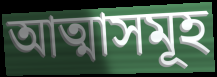
আত্মাসমূহ